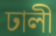
ঢালী